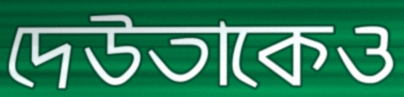
দেউতাকেও